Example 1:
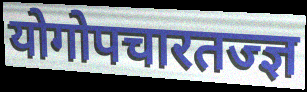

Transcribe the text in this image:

योगोपचारतज्ज्ञ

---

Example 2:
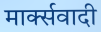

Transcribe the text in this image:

मार्क्‍सवादी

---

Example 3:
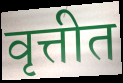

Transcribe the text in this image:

वृत्तीत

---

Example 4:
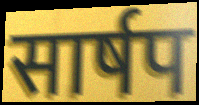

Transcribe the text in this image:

सार्षप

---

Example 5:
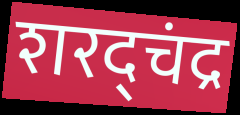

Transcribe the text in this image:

शरद्चंद्र